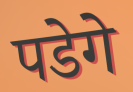
पडेगे